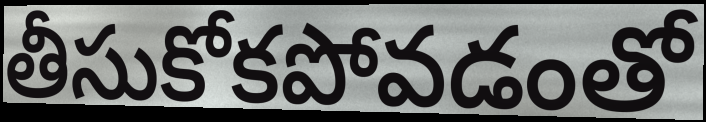
తీసుకోకపోవడంతో